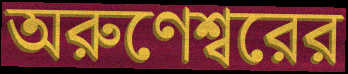
অরুণেশ্বরের